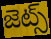
జెట్స్